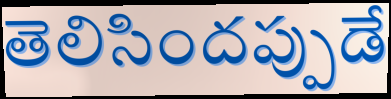
తెలిసిందప్పుడే